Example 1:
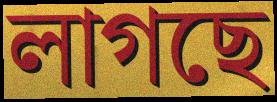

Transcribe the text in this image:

লাগছে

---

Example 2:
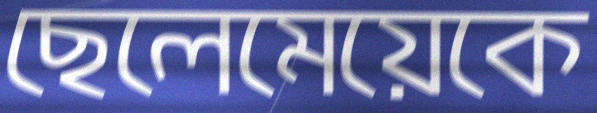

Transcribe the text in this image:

ছেলেমেয়েকে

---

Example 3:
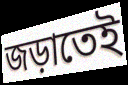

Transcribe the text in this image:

জড়াতেই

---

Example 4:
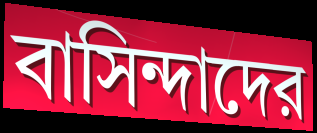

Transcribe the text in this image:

বাসিন্দাদের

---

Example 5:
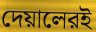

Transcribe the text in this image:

দেয়ালেরই